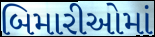
બિમારીઓમાં